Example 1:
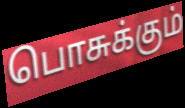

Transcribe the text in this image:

பொசுக்கும்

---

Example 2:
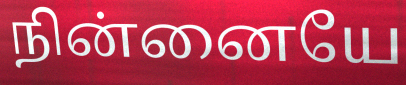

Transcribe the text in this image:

நின்னையே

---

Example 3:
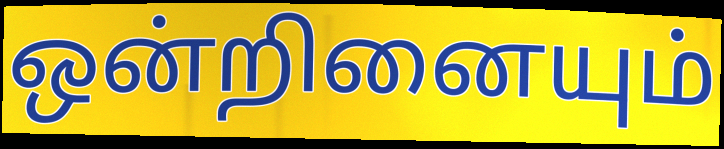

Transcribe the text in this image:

ஒன்றினையும்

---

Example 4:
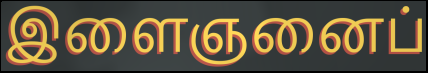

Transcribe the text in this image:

இளைஞனைப்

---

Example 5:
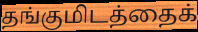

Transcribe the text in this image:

தங்குமிடத்தைக்